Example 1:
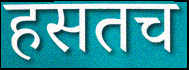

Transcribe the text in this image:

हसतच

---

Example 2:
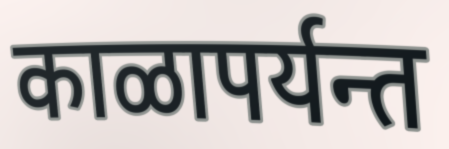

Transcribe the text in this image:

काळापर्यन्त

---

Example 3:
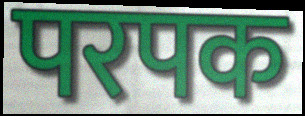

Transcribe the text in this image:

परपक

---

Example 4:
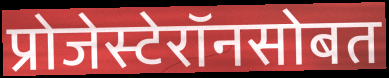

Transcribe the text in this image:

प्रोजेस्टेरॉनसोबत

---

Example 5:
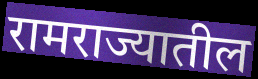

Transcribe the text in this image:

रामराज्यातील